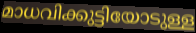
മാധവിക്കുട്ടിയോടുള്ള